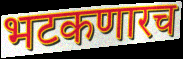
भटकणारच